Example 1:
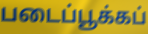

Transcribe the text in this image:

படைப்பூக்கப்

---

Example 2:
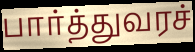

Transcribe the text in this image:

பார்த்துவரச்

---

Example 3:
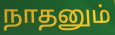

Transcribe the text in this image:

நாதனும்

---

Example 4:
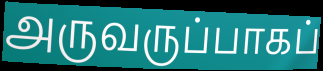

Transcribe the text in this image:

அருவருப்பாகப்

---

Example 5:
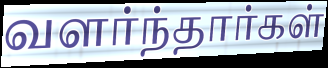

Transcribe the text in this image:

வளர்ந்தார்கள்